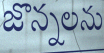
జొన్నలను